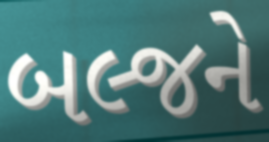
બલ્જને